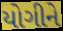
યોગીને